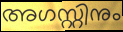
അഗസ്റ്റിനും